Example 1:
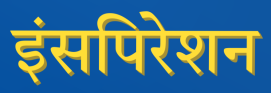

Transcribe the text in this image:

इंसपिरेशन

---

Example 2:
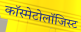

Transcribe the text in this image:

कॉस्मेटोलॉजिस्ट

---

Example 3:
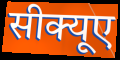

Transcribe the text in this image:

सीक्यूए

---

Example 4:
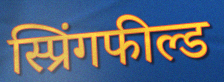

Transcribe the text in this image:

स्प्रिंगफील्ड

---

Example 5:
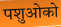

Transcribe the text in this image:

पशुओको